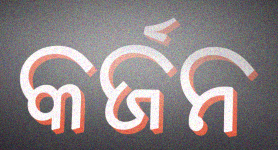
କର୍ଜନ